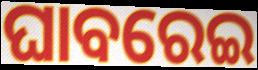
ଘାବରେଇ